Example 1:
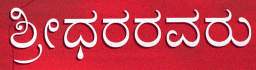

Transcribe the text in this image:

ಶ್ರೀಧರರವರು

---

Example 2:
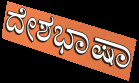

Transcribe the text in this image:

ದೇಶಭಾಷಾ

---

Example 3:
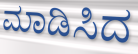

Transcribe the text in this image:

ಮಾಡಿಸಿದ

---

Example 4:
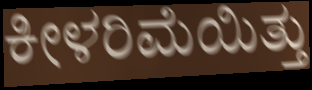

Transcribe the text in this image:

ಕೀಳರಿಮೆಯಿತ್ತು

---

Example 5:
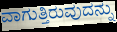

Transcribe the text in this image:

ವಾಗುತ್ತಿರುವುದನ್ನು